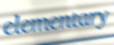
elementary